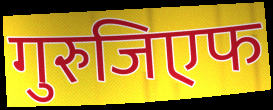
गुरुजिएफ